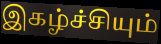
இகழ்ச்சியும்